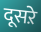
दूसऱे